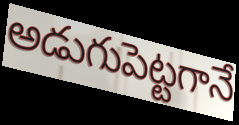
అడుగుపెట్టగానే